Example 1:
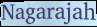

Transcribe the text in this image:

Nagarajah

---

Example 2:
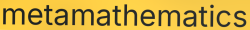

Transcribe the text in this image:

metamathematics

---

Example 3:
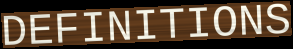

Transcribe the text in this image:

DEFINITIONS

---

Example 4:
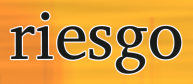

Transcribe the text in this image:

riesgo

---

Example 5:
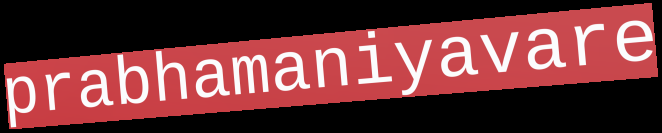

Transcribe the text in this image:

prabhamaniyavare